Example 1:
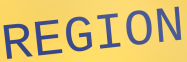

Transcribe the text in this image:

REGION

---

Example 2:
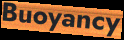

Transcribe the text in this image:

Buoyancy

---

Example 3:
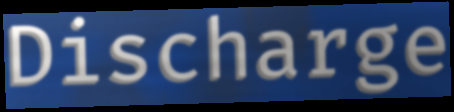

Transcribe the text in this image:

Discharge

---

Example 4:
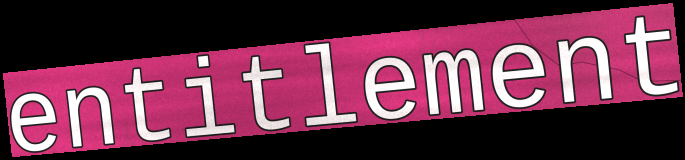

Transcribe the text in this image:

entitlement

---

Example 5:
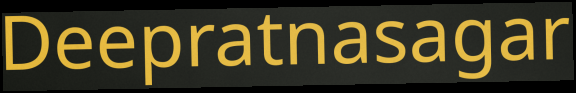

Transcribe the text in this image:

Deepratnasagar